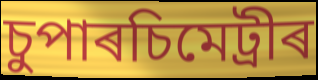
চুপাৰচিমেট্ৰীৰ